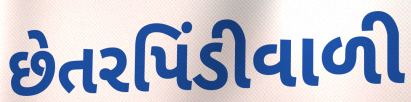
છેતરપિંડીવાળી